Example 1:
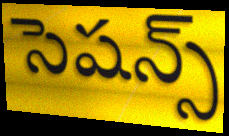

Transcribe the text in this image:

సెషన్స్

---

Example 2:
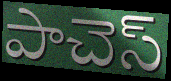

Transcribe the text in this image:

పాచెస్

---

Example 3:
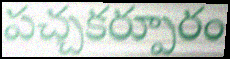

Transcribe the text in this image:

పచ్చకర్పూరం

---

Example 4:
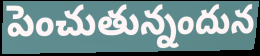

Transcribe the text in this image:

పెంచుతున్నందున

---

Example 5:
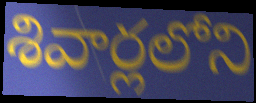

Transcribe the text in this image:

శివార్లలోని